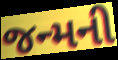
જન્મની